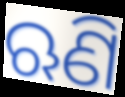
ଋଣି